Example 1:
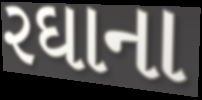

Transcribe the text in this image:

રઘાના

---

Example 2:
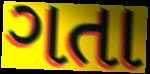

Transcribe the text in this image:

ગતા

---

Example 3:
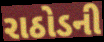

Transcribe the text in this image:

રાઠોડની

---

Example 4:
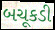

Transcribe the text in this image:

બચૂકડી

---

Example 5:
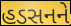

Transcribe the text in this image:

હડસનને